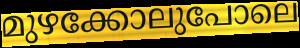
മുഴക്കോലുപോലെ